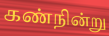
கண்நின்று